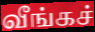
வீங்கச்